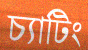
চ্যাটিং